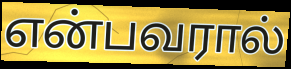
என்பவரால்